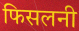
फिसलनी